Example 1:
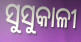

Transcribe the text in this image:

ସୁସୁକାଳୀ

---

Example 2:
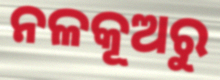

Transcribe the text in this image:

ନଳକୂଅରୁ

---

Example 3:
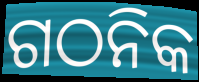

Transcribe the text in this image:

ଗଠନିକ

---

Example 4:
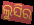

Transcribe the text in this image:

ଲୁସିର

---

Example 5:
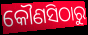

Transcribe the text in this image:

କୌଣସିଠାରୁ